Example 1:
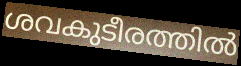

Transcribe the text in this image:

ശവകുടീരത്തിൽ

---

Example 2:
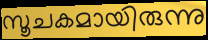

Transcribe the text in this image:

സൂചകമായിരുന്നു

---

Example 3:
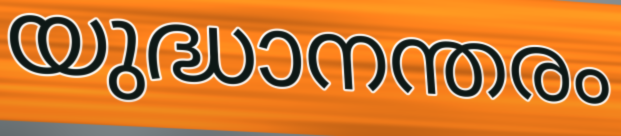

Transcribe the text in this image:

യുദ്ധാനന്തരം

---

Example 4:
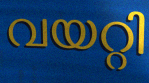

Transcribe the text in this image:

വയറ്റി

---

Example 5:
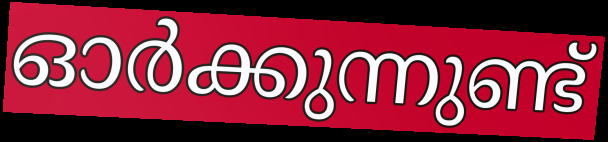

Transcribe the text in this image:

ഓർക്കുന്നുണ്ട്